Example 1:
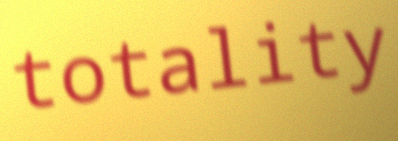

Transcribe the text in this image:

totality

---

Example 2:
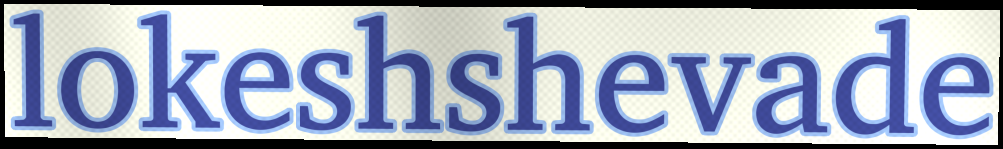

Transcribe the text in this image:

lokeshshevade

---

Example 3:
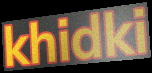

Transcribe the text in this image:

khidki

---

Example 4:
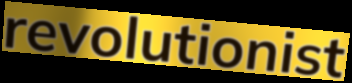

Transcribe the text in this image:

revolutionist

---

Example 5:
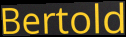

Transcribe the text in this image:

Bertold